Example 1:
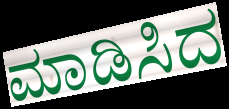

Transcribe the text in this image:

ಮಾಡಿಸಿದ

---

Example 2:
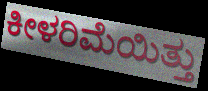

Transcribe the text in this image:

ಕೀಳರಿಮೆಯಿತ್ತು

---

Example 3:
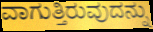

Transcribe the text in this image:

ವಾಗುತ್ತಿರುವುದನ್ನು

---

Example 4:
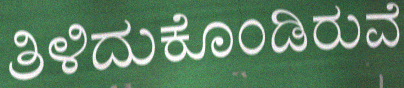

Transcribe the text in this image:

ತಿಳಿದುಕೊಂಡಿರುವೆ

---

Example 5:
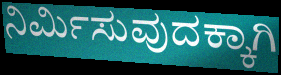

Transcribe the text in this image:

ನಿರ್ಮಿಸುವುದಕ್ಕಾಗಿ